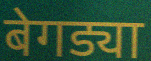
बेगड्या